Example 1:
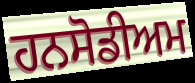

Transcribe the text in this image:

ਹਨਸੋਡੀਅਮ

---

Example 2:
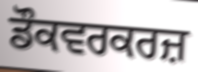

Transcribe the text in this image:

ਡੌਕਵਰਕਰਜ਼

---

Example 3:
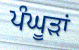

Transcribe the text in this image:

ਪੰਘੂੜਾਂ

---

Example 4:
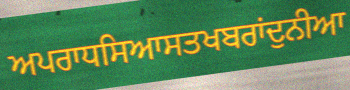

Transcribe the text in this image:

ਅਪਰਾਧਸਿਆਸਤਖਬਰਾਂਦੁਨੀਆ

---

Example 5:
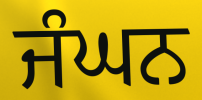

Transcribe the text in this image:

ਜੰਘਨ